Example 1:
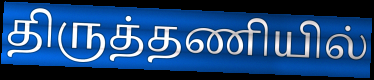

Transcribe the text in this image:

திருத்தணியில்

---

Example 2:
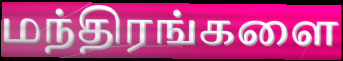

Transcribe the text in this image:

மந்திரங்களை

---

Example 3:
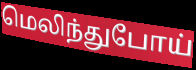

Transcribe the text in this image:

மெலிந்துபோய்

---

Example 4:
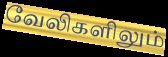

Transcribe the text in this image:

வேலிகளிலும்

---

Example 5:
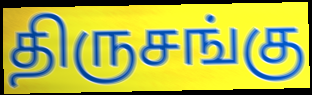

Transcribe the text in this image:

திருசங்கு